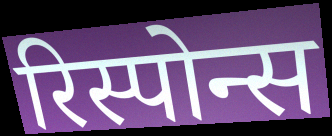
रिस्पोन्स